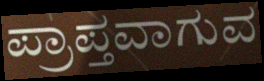
ಪ್ರಾಪ್ತವಾಗುವ